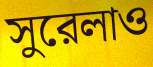
সুরেলাও